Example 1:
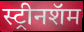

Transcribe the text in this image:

स्ट्रीनशॅम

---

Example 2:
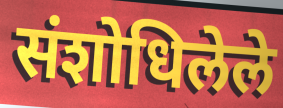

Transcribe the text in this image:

संशोधिलेले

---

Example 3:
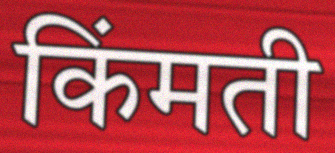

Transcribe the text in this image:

किंमती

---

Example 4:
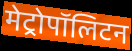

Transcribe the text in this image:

मेट्रोपॉलिटन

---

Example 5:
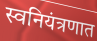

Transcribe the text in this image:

स्वनियंत्रणात